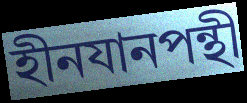
হীনযানপন্থী